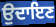
ਉਦਾਇਣ